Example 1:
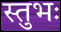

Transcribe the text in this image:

स्तुभः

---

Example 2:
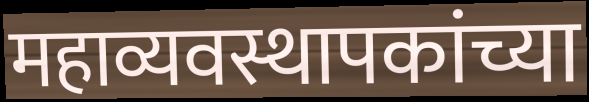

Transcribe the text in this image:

महाव्यवस्थापकांच्या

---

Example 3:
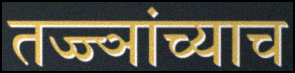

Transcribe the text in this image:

तज्ज्ञांच्याच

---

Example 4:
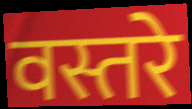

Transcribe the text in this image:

वस्तरे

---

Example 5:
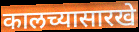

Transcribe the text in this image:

कालच्यासारखे